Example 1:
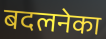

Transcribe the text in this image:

बदलनेका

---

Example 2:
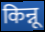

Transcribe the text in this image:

किन्नू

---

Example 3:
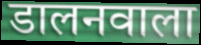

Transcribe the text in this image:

डालनवाला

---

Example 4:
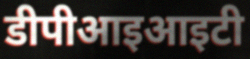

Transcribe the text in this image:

डीपीआइआइटी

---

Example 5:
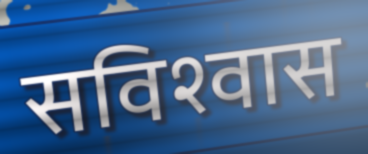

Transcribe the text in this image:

सविश्वास